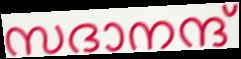
സദാനന്ദ്